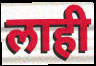
लाही